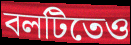
বলটিতেও